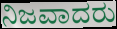
ನಿಜವಾದರು